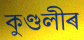
কুণ্ডলীৰ